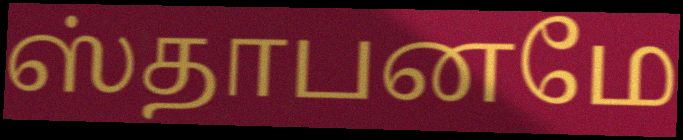
ஸ்தாபனமே